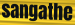
sangathe